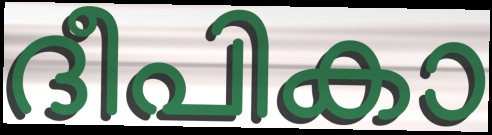
ദീപികാ